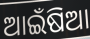
ଆଇଁଷିଆ